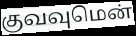
குவவுமென்